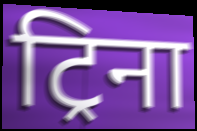
ट्रिना